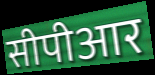
सीपीआर